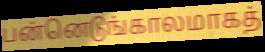
பன்னெடுங்காலமாகத்